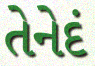
તેનેદં